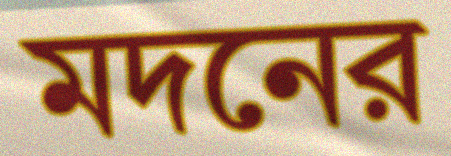
মদনের